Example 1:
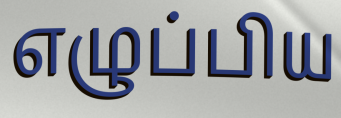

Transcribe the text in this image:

எழுப்பிய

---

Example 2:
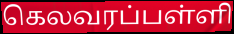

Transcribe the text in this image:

கெலவரப்பள்ளி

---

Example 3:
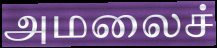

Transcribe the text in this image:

அமலைச்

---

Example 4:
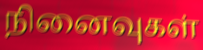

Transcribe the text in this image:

நினைவுகள்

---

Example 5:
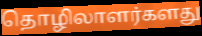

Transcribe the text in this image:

தொழிலாளர்களது